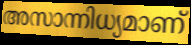
അസാന്നിധ്യമാണ്